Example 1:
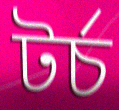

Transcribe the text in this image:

টর্চ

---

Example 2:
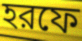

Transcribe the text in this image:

হরফে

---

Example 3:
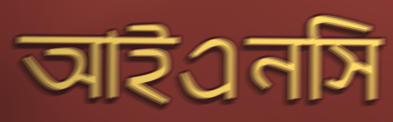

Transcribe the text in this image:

আইএনসি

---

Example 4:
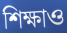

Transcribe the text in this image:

শিক্ষাও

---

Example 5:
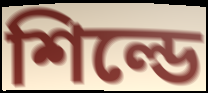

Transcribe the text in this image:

শিল্ডে